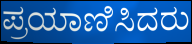
ಪ್ರಯಾಣಿಸಿದರು